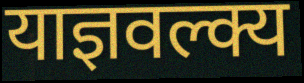
याज्ञवल्क्य